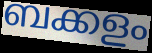
ബക്കളം